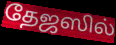
தேஜஸில்